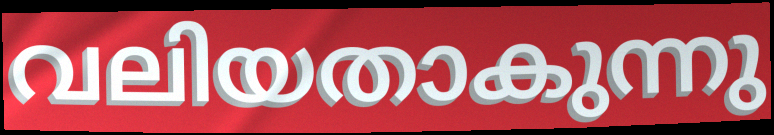
വലിയതാകുന്നു